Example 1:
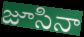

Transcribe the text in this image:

జూసినా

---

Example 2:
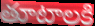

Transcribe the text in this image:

తూటాలకి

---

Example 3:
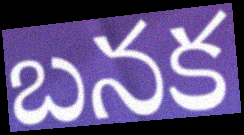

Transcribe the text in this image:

బనక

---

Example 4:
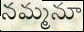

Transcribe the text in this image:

నమ్మనూ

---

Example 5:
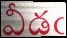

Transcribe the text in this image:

వీడఁ